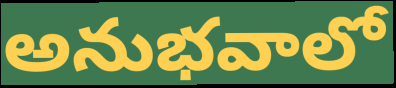
అనుభవాలో